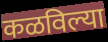
कळविल्या